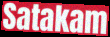
Satakam